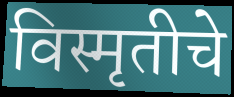
विस्मृतीचे